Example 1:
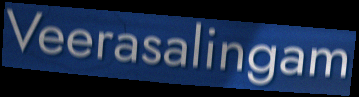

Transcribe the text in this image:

Veerasalingam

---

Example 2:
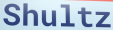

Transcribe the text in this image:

Shultz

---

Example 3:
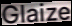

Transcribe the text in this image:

Glaize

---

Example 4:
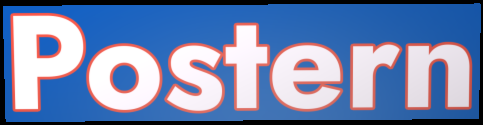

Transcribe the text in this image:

Postern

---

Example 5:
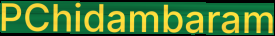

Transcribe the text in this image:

PChidambaram